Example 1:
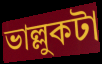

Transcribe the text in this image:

ভাল্লুকটা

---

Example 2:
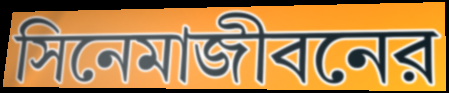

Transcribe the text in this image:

সিনেমাজীবনের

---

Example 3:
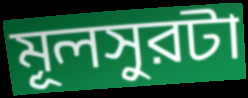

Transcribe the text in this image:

মূলসুরটা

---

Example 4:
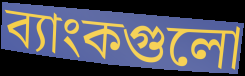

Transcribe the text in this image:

ব্যাংকগুলো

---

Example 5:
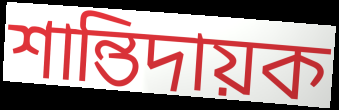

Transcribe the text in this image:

শান্তিদায়ক